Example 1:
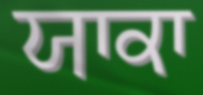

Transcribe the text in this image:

ਯਾਕਾ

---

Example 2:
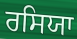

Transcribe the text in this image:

ਰਸਿਯਾ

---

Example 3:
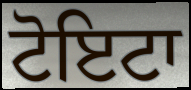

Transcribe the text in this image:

ਟੋਇਟਾ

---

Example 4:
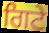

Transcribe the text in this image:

ਗਿਟੇ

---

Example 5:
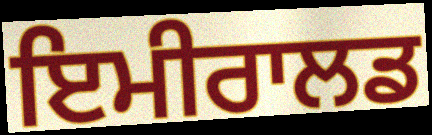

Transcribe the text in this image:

ਇਮੀਰਾਲਡ